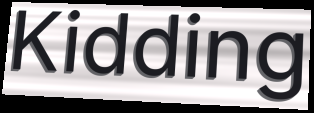
Kidding